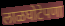
लाळघोटेपणा